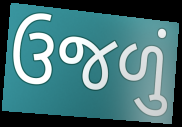
ઉજળું